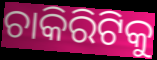
ଚାକିରିଟିକୁ